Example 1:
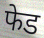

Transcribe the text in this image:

फेड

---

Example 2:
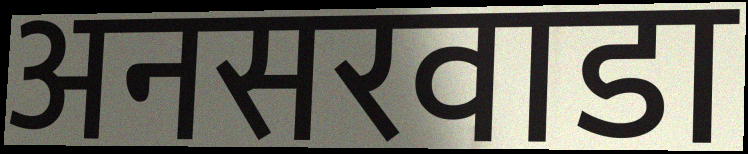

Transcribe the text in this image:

अनसरवाडा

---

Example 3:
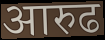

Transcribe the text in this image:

आरुढ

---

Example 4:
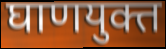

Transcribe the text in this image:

घाणयुक्त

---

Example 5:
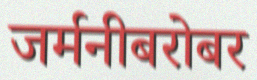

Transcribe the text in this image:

जर्मनीबरोबर